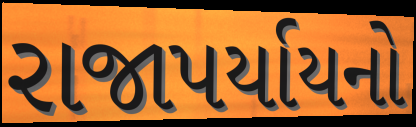
રાજાપર્યાયનો